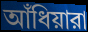
আঁধিয়ারা